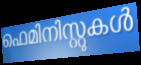
ഫെമിനിസ്റ്റുകൾ